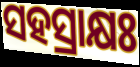
ସହସ୍ରାକ୍ଷଃ